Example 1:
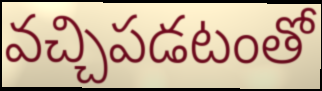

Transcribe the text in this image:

వచ్చిపడటంతో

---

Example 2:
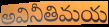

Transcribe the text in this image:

అవినీతిమయ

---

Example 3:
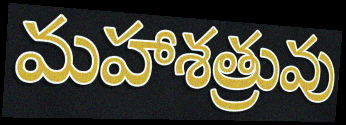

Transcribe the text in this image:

మహాశత్రువు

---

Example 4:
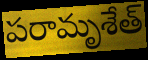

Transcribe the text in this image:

పరామృశేత్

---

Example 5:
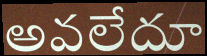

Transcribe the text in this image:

అవలేదూ